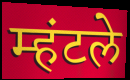
म्हंटले